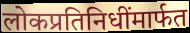
लोकप्रतिनिधींमार्फत